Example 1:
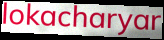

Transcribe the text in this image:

lokacharyar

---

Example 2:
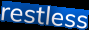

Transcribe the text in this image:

restless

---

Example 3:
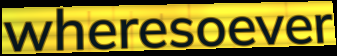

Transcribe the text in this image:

wheresoever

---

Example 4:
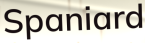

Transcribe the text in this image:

Spaniard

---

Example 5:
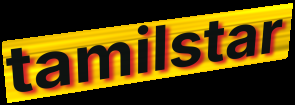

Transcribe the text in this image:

tamilstar